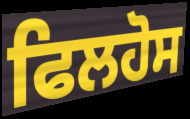
ਫਿਲਹੋਸ